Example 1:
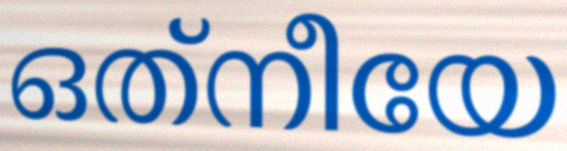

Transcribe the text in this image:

ഒത്‌നീയേ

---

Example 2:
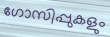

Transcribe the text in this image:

ഗോസിപ്പുകളും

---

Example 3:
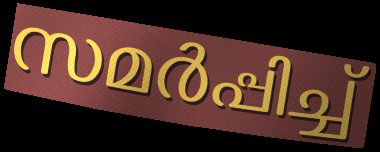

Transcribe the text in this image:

സമർപ്പിച്ച്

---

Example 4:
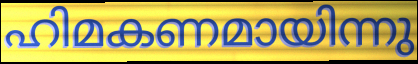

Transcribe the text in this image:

ഹിമകണമായിന്നു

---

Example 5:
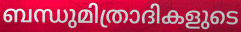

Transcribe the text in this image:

ബന്ധുമിത്രാദികളുടെ